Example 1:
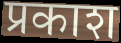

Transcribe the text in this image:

प्रकाश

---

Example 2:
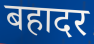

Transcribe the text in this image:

बहादर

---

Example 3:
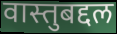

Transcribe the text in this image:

वास्तुबद्दल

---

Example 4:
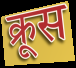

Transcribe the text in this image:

क्रूस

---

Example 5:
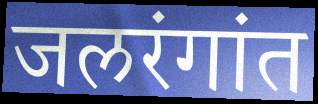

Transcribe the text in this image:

जलरंगांत